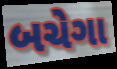
બચેગા